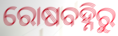
ରୋଷବହ୍ନିରୁ